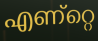
എണ്റ്റെ